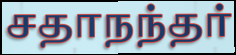
சதாநந்தர்